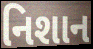
નિશાન